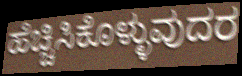
ಹೆಚ್ಚಿಸಿಕೊಳ್ಳುವುದರ